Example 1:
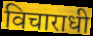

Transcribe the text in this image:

विचाराधी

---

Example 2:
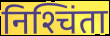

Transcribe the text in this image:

निश्चिंता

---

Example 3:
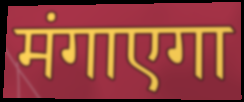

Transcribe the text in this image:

मंगाएगा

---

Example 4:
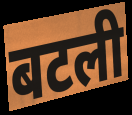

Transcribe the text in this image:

बटली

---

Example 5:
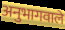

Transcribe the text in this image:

अनुभागवाले